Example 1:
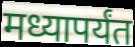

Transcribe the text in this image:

मध्यापर्यंत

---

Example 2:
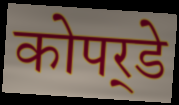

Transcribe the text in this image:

कोपर्डे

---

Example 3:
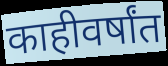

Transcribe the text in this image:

काहीवर्षांत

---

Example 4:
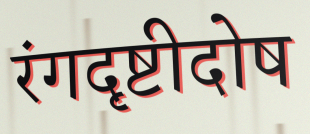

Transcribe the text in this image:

रंगदृष्टीदोष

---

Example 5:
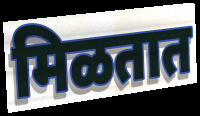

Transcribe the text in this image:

मिळतात